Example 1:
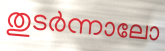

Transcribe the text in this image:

തുടർന്നാലോ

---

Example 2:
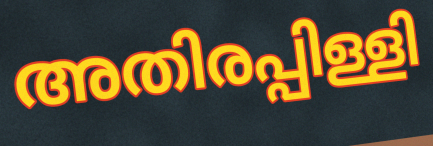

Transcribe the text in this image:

അതിരപ്പിള്ളി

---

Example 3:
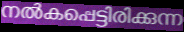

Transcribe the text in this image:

നൽകപ്പെട്ടിരിക്കുന്ന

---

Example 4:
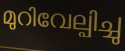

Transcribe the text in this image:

മുറിവേല്പിച്ചു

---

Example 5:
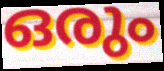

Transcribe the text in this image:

ഒരും